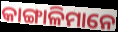
କାଙ୍ଗାଳିମାନେ